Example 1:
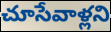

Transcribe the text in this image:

చూసేవాళ్లని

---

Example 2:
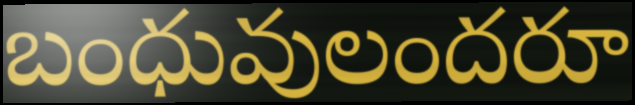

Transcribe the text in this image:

బంధువులందరూ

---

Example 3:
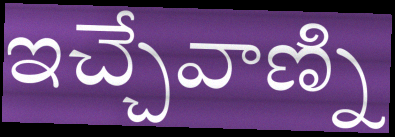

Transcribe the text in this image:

ఇచ్చేవాణ్ని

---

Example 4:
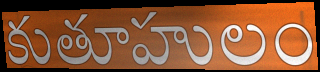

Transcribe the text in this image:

కుతూహులం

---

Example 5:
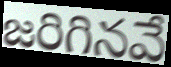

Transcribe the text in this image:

జరిగినవే